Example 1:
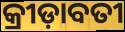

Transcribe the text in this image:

କ୍ରୀଡ଼ାବତୀ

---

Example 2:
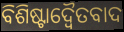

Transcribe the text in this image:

ବିଶିଷ୍ଟାଦ୍ୱୈତବାଦ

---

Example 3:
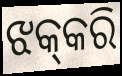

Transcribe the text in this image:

ଝକ୍‌କରି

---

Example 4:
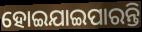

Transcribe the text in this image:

ହୋଇଯାଇପାରନ୍ତି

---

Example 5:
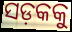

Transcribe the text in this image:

ସଡ଼କକୁ